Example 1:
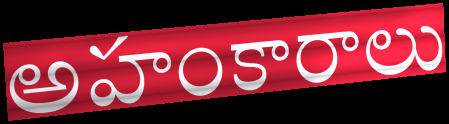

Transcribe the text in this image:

అహంకారాలు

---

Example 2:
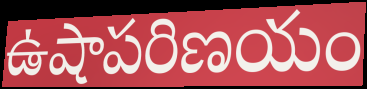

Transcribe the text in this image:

ఉషాపరిణయం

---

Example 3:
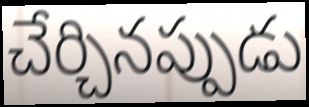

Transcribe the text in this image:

చేర్చినప్పుడు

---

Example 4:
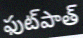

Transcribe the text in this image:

ఫుట్‌పాత్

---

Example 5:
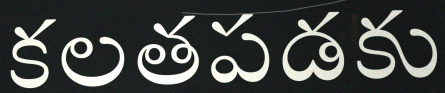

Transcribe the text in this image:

కలతపడకు